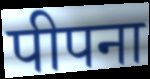
पीपना